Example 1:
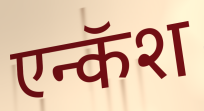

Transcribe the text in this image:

एन्कॅश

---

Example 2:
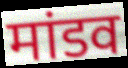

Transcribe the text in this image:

मांडव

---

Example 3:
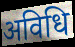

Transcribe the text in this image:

अविधि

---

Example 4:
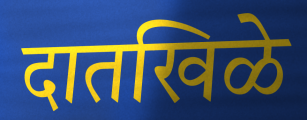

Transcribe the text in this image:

दातखिळे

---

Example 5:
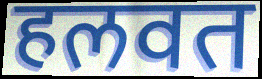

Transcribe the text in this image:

हलवत